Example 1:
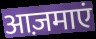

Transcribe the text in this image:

आज़माएं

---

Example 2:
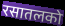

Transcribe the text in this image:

रसातलको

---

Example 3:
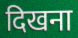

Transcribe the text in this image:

दिखना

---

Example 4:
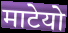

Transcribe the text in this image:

माटेयो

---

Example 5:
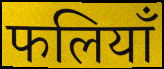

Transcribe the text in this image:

फलियाँ